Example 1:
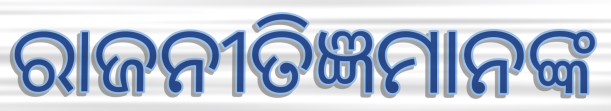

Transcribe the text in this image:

ରାଜନୀତିଜ୍ଞମାନଙ୍କ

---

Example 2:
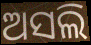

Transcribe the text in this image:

ଅସଲି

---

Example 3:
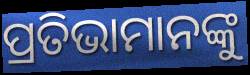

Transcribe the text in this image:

ପ୍ରତିଭାମାନଙ୍କୁ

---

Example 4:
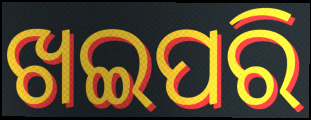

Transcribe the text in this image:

ଖଇପରି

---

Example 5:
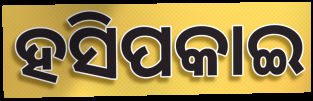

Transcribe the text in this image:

ହସିପକାଇ